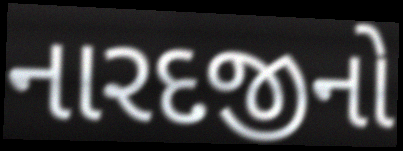
નારદજીનો